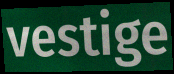
vestige